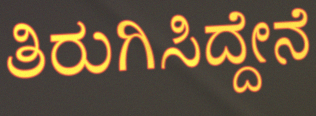
ತಿರುಗಿಸಿದ್ದೇನೆ